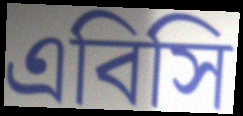
এবিসি